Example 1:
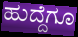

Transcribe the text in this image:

ಹುದ್ದೆಗೂ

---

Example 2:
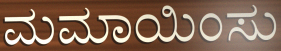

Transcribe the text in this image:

ಮಮಾಯಿಂಸು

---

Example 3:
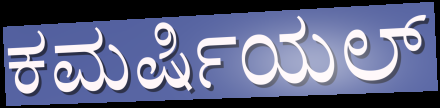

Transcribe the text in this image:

ಕಮರ್ಷಿಯಲ್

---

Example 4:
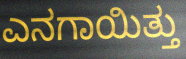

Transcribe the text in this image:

ಎನಗಾಯಿತ್ತು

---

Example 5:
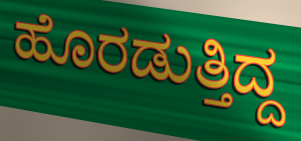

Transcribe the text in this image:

ಹೊರಡುತ್ತಿದ್ದ